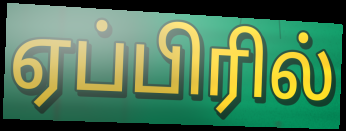
ஏப்பிரில்